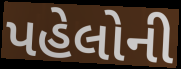
પહેલોની